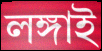
লঙ্গাই